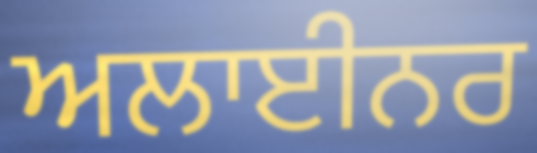
ਅਲਾਈਨਰ